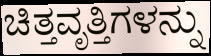
ಚಿತ್ತವೃತ್ತಿಗಳನ್ನು